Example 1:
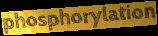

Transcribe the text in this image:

phosphorylation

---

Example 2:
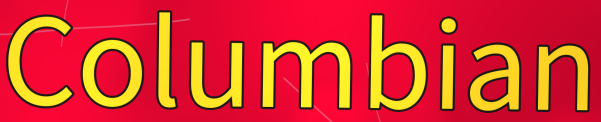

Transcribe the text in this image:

Columbian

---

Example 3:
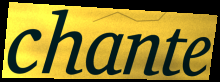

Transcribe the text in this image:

chante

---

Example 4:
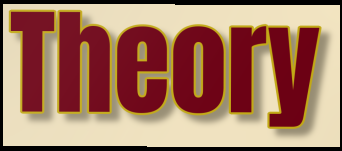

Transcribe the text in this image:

Theory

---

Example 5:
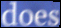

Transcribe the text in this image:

does